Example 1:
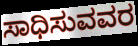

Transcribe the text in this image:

ಸಾಧಿಸುವವರ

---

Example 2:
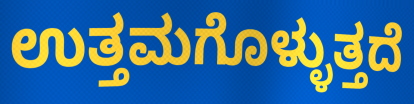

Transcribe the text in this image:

ಉತ್ತಮಗೊಳ್ಳುತ್ತದೆ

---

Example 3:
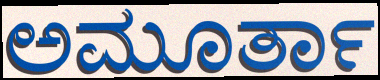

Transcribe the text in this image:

ಅಮೂರ್ತಾ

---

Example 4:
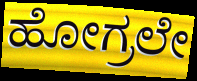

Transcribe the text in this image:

ಹೋಗ್ರಲೇ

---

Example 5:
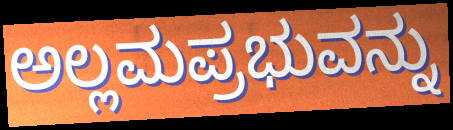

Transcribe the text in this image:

ಅಲ್ಲಮಪ್ರಭುವನ್ನು